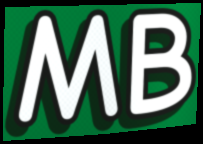
MB